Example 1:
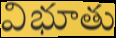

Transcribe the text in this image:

విభూతు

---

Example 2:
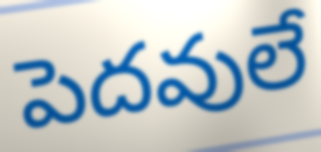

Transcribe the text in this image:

పెదవులే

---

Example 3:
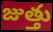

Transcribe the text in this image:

జుత్తు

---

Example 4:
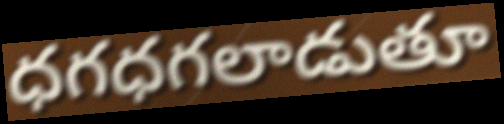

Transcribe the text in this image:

ధగధగలాడుతూ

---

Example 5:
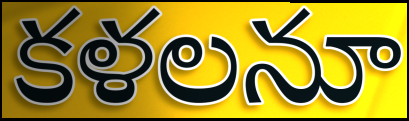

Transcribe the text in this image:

కళలనూ